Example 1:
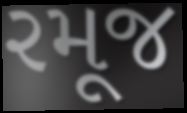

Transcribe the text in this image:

રમૂજ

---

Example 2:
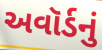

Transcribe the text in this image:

અવૉર્ડનું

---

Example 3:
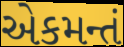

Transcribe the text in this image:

એકમન્તં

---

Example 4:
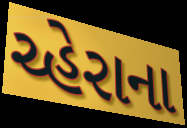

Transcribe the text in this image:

ચ્હેરાના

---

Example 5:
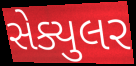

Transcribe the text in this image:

સેક્યુલર